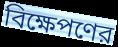
বিক্ষেপণের